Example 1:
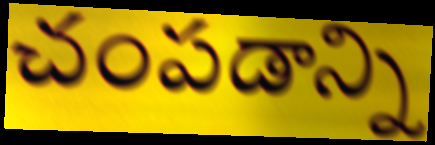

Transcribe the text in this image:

చంపడాన్ని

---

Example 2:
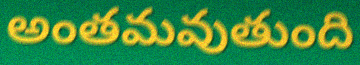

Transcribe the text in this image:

అంతమవుతుంది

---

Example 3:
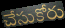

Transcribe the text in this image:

చేసుకోరు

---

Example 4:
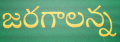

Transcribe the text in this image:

జరగాలన్న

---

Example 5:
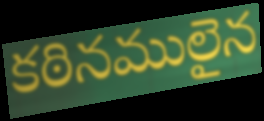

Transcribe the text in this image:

కఠినములైన